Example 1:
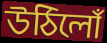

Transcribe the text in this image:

উঠিলোঁ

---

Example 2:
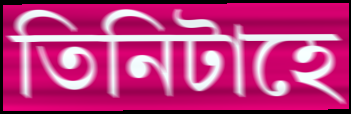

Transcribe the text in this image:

তিনিটাহে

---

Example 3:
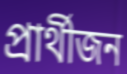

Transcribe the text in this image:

প্ৰাৰ্থীজন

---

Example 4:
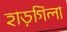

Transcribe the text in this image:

হাড়গিলা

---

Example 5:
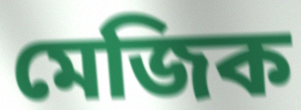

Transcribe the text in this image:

মেজিক